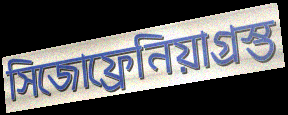
সিজোফ্রেনিয়াগ্রস্ত